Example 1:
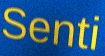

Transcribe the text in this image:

Senti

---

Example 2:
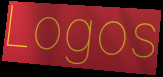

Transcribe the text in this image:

Logos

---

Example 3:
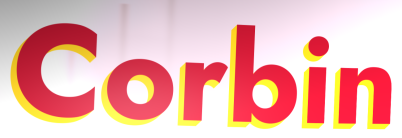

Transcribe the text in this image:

Corbin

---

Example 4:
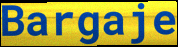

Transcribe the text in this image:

Bargaje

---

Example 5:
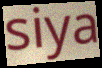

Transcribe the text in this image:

siya